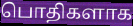
பொதிகளாக